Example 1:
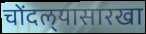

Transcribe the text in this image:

चोंदल्यासारखा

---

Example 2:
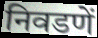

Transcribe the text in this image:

निवडणें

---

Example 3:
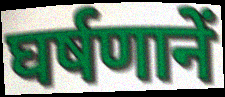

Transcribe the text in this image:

घर्षणानें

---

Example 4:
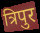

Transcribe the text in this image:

त्रिपुर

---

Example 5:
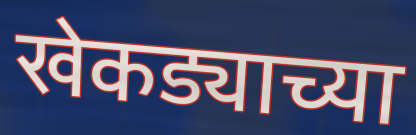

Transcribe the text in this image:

खेकड्याच्या